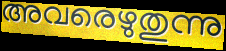
അവരെഴുതുന്നു